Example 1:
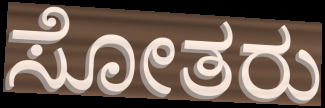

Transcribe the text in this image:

ಸೋತರು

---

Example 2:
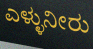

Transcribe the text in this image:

ಎಳ್ಳುನೀರು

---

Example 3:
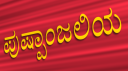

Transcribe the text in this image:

ಪುಷ್ಪಾಂಜಲಿಯ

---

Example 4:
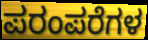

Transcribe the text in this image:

ಪರಂಪರೆಗಳ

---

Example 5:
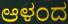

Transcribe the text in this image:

ಆಳಂದ